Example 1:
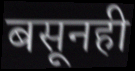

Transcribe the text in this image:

बसूनही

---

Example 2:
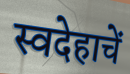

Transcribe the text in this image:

स्वदेहाचें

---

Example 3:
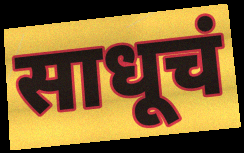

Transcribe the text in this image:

साधूचं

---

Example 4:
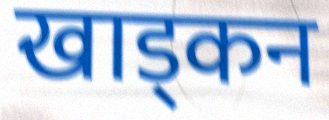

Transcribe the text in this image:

खाड्कन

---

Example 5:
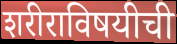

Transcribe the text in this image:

शरीराविषयीची